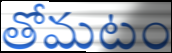
తోమటం